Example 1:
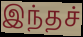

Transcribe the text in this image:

இந்தச்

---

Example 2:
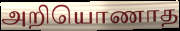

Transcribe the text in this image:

அறியொணாத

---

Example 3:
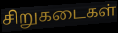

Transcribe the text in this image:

சிறுகடைகள்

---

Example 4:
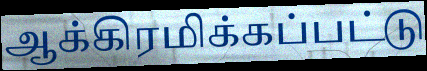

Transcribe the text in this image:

ஆக்கிரமிக்கப்பட்டு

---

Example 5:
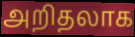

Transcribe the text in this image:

அறிதலாக